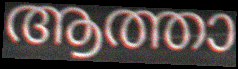
ആത്താ